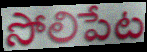
సోలిపేట